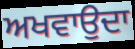
ਅਖਵਾਉਦਾ